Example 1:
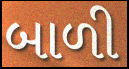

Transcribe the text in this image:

બાળી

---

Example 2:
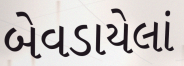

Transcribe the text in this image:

બેવડાયેલાં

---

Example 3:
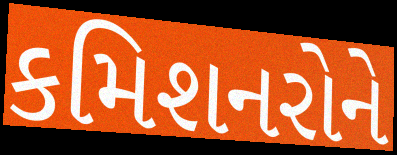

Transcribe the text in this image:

કમિશનરોને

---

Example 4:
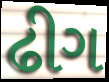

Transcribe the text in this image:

ઢીગ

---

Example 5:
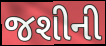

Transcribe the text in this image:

જશીની